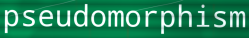
pseudomorphism